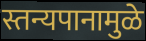
स्तन्यपानामुळे